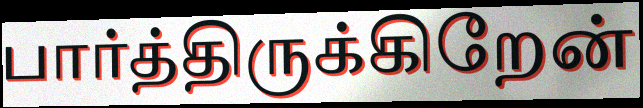
பார்த்திருக்கிறேன்